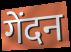
गेंदन